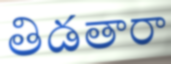
తిడతారా